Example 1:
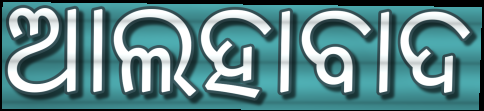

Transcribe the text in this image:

ଆଲହାବାଦ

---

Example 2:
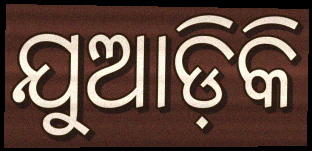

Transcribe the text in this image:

ଯୁଆଡ଼ିକି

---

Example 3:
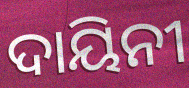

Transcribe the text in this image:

ଦାୟିନୀ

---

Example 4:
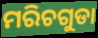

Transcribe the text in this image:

ମରିଚଗୁଡା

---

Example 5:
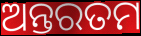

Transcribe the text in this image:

ଅନ୍ତରତମ